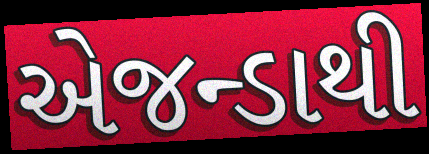
એજન્ડાથી